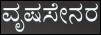
ವೃಷಸೇನರ